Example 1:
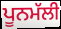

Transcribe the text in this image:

ਪੂਨਮੱਲੀ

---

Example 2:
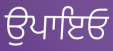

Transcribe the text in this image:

ਉਪਾਇਓ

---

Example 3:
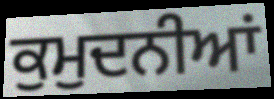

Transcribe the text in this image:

ਕੁਮੁਦਨੀਆਂ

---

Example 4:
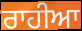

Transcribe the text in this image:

ਰਾਹੀਆ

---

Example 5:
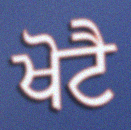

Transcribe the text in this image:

ਖੋਟੈ